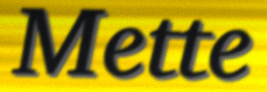
Mette